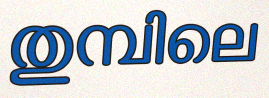
തുമ്പിലെ